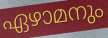
ഏഴാമനും